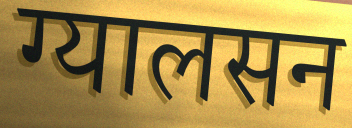
ग्यालसन